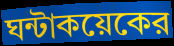
ঘন্টাকয়েকের